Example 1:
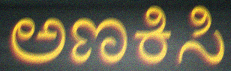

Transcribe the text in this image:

ಅಣಕಿಸಿ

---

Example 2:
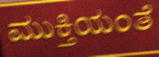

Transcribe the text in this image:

ಮುಕ್ತಿಯಂತೆ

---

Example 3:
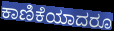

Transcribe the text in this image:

ಕಾಣಿಕೆಯಾದರೂ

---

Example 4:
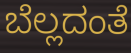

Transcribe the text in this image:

ಬೆಲ್ಲದಂತೆ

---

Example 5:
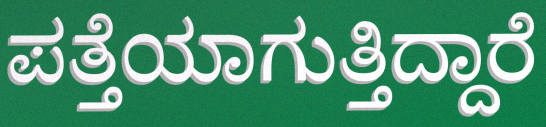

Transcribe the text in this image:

ಪತ್ತೆಯಾಗುತ್ತಿದ್ದಾರೆ